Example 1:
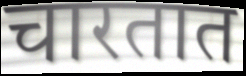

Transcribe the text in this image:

चारतात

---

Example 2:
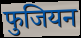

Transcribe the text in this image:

फुजियन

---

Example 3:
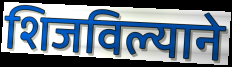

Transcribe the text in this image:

शिजविल्याने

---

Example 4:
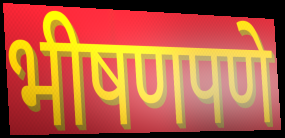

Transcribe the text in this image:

भीषणपणे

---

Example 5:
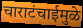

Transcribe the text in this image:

चाराटंचाईमुळे